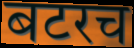
बटरच